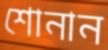
শোনান